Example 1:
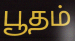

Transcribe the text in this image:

பூதம்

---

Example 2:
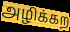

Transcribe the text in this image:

அழிக்கற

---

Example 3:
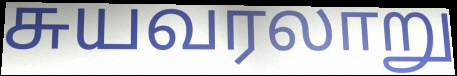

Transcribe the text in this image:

சுயவரலாறு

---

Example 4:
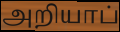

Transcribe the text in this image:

அறியாப்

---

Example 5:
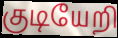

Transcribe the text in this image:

குடியேறி